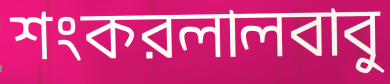
শংকরলালবাবু